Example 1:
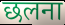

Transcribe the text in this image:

छलना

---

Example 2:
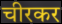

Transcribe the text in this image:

चीरकर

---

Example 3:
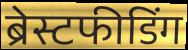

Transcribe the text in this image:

ब्रेस्टफीडिंग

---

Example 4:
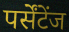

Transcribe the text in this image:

पर्सेंटेंज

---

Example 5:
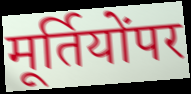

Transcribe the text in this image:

मूर्तियोंपर